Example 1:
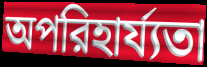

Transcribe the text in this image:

অপরিহার্য্যতা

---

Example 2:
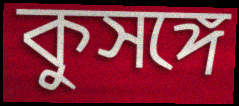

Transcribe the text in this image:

কুসঙ্গে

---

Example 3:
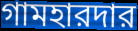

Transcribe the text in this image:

গামহারদার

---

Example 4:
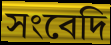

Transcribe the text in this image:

সংবেদি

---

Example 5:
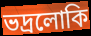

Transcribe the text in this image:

ভদ্রলোকি